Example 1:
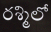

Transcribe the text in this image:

రశ్మిలో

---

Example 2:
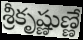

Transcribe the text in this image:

శ్రీకృష్ణుణ్ణే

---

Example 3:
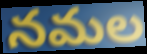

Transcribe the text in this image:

నమల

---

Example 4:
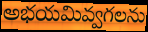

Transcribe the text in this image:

అభయమివ్వగలను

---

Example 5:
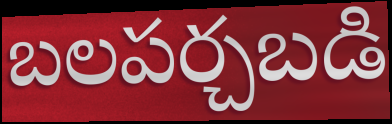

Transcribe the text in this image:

బలపర్చబడి